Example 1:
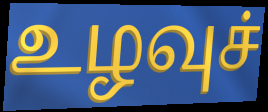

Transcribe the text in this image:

உழவுச்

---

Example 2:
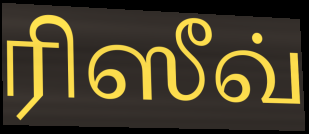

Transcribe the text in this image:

ரிஸீவ்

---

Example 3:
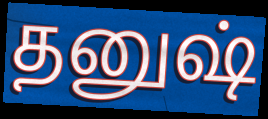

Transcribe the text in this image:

தனுஷ்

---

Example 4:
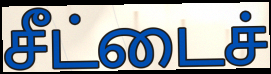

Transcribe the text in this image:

சீட்டைச்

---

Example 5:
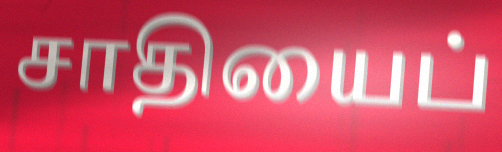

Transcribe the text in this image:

சாதியைப்